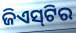
ଜିଏସ୍‌ଟିର